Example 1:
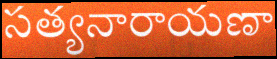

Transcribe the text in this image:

సత్యనారాయణా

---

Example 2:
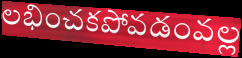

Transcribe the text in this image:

లభించకపోవడంవల్ల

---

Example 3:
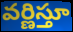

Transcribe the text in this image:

వర్ణిస్తూ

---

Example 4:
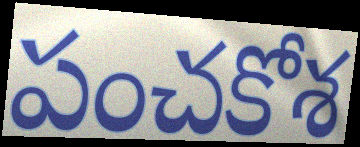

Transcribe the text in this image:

పంచకోశ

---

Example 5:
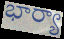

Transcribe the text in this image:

భార్యా